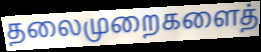
தலைமுறைகளைத்